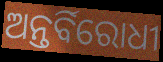
ଅନ୍ତର୍ବିରୋଧୀ